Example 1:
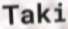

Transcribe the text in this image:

Taki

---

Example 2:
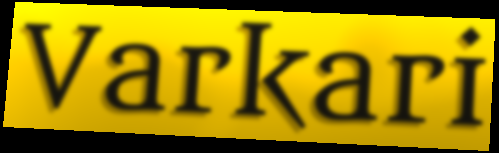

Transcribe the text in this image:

Varkari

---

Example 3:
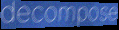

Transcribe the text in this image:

decompose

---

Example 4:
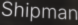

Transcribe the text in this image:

Shipman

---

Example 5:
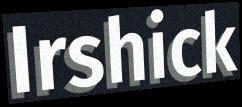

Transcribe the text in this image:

Irshick